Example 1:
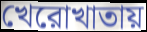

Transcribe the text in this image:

খেরোখাতায়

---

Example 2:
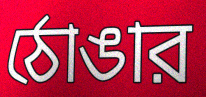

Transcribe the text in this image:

ঠোঙার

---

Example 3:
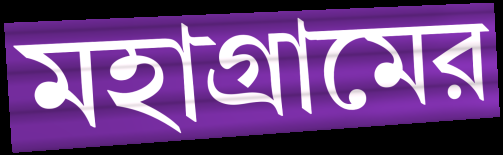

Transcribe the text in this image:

মহাগ্রামের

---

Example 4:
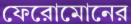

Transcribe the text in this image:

ফেরোমোনের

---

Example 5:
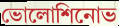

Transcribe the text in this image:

ভোলোশিনোভ